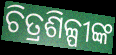
ଚିତ୍ରଶିଳ୍ପୀଙ୍କ